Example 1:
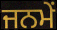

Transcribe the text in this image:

ਜਨਮੇਂ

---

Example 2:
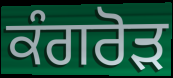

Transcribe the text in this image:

ਕੰਗਰੋੜ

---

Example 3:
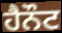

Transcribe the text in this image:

ਹੈਨੌਟ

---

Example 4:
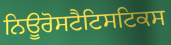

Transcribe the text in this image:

ਨਿਊਰੋਸਟੈਟਿਸਟਿਕਸ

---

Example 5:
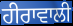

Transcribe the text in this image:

ਹੀਰਾਵਾਲੀ